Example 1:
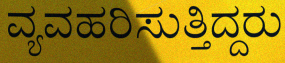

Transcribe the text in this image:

ವ್ಯವಹರಿಸುತ್ತಿದ್ದರು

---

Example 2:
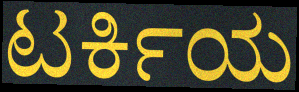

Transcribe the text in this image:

ಟರ್ಕಿಯ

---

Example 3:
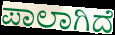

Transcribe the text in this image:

ಪಾಲಾಗಿದೆ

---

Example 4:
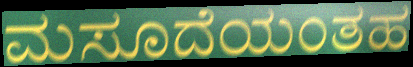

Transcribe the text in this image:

ಮಸೂದೆಯಂತಹ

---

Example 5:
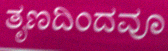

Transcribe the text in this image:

ತೃಣದಿಂದವೂ